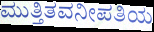
ಮುತ್ತಿತವನೀಪತಿಯ